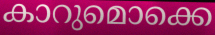
കാറുമൊക്കെ